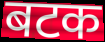
बटक